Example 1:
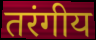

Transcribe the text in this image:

तरंगीय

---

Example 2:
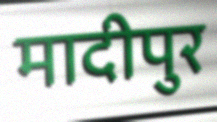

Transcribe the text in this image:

मादीपुर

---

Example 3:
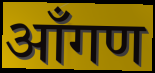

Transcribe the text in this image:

आँगण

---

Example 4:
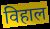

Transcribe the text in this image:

विहाल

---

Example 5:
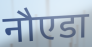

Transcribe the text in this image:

नौएडा